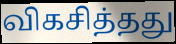
விகசித்தது